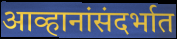
आव्हानांसंदर्भात